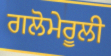
ਗਲੋਮੇਰੂਲੀ